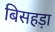
बिसहड़ा